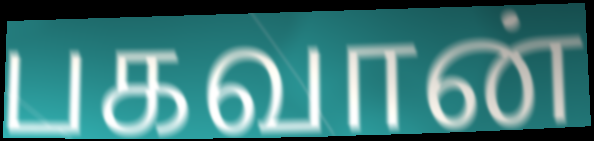
பகவான்